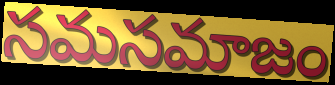
సమసమాజం